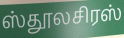
ஸ்தூலசிரஸ்